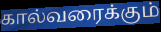
கால்வரைக்கும்